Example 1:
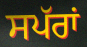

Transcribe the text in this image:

ਸਪੱਰਾਂ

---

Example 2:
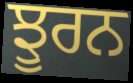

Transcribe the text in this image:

ਝੂਰਨ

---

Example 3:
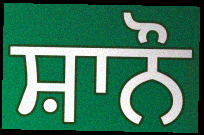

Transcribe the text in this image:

ਸ਼ਾਨੌ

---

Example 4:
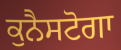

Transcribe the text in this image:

ਕੁਨੈਸਟੋਗਾ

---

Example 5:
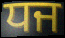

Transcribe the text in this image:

ਧਜ